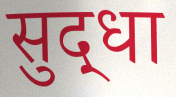
सुद्धा